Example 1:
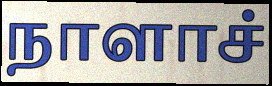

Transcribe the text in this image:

நாளாச்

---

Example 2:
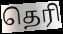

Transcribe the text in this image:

தெரி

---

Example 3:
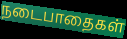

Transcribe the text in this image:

நடைபாதைகள்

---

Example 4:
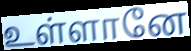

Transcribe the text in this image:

உள்ளானே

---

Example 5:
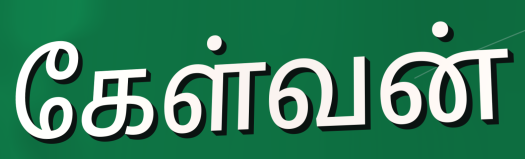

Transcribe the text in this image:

கேள்வன்